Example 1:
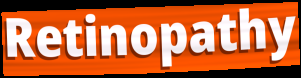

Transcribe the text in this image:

Retinopathy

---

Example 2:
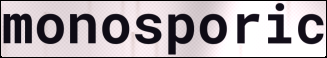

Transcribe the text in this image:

monosporic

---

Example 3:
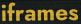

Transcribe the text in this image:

iframes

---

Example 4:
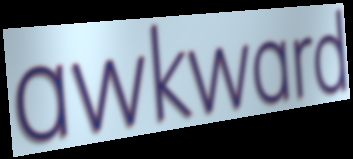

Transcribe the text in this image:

awkward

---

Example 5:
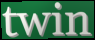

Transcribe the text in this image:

twin